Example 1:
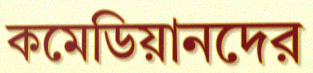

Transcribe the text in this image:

কমেডিয়ানদের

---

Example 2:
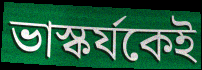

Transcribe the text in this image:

ভাস্কর্যকেই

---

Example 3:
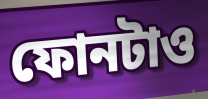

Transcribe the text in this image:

ফোনটাও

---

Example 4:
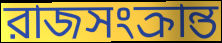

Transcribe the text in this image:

রাজসংক্রান্ত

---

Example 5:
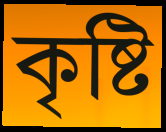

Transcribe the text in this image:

কৃষ্টি